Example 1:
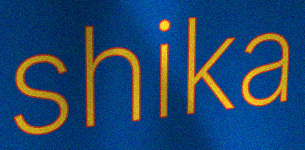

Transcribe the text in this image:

shika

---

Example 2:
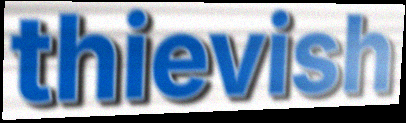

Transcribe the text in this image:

thievish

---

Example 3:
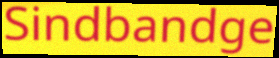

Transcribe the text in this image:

Sindbandge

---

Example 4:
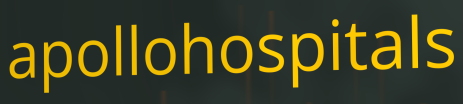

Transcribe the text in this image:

apollohospitals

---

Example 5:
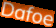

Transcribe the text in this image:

Dafoe